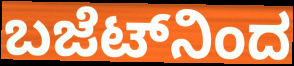
ಬಜೆಟ್‌ನಿಂದ